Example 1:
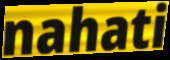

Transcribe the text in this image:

nahati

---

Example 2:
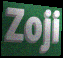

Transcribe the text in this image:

Zoji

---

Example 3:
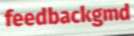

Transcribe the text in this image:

feedbackgmd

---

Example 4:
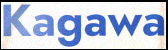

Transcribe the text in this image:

Kagawa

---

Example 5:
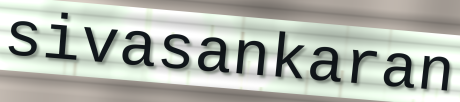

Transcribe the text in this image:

sivasankaran